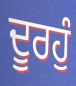
ਦੂਰਹੁੰ